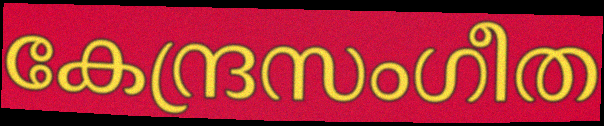
കേന്ദ്രസംഗീത